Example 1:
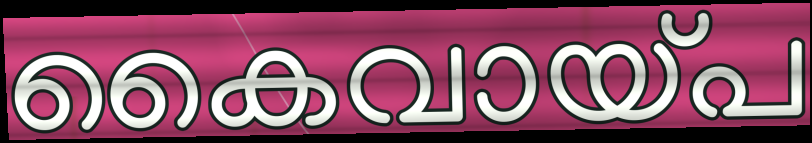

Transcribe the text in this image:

കൈവായ്പ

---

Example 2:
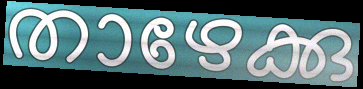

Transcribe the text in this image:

താഴേക്കു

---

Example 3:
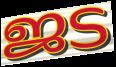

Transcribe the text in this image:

ജട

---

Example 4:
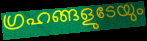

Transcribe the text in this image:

ഗ്രഹങ്ങളുടേയും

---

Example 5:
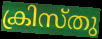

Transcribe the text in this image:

ക്രിസ്തു